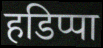
हडिप्पा